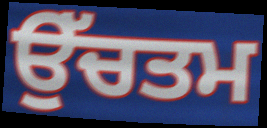
ਉੱਚਤਮ